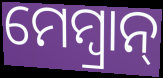
ମେମ୍ବ୍ରାନ୍